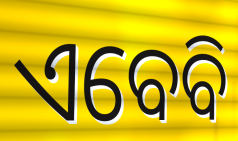
ଏବେବି